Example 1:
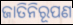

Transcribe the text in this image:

ଜାତିନିରୂପଣ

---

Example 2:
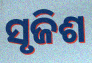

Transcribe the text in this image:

ସୃଜିଶ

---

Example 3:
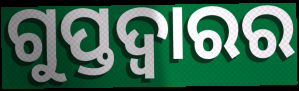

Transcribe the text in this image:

ଗୁପ୍ତଦ୍ୱାରର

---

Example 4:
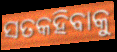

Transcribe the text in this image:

ସତକହିବାକୁ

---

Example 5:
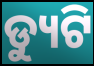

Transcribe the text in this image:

ଡ୍ୟୁଟି